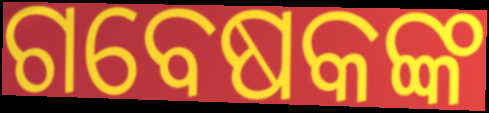
ଗବେଷକଙ୍କ